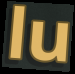
lu